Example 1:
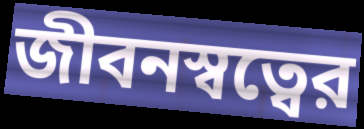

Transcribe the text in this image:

জীবনস্বত্বের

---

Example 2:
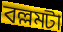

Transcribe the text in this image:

বল্লমটা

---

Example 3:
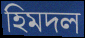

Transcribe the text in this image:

হিমদল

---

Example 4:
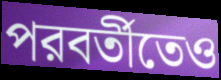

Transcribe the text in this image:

পরবর্তীতেও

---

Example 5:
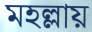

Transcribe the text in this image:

মহল্লায়